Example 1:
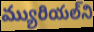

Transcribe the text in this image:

మ్యురియల్‌ని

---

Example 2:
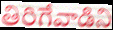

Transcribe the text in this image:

తిరిగేవాడిని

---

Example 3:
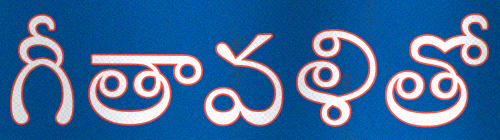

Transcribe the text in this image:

గీతావళితో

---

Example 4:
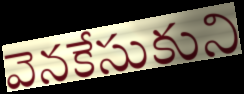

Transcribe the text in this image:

వెనకేసుకుని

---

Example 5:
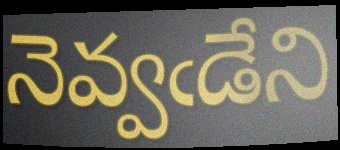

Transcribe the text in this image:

నెవ్వఁడేని